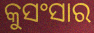
କୁସଂସାର